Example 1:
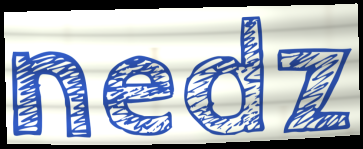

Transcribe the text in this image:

nedz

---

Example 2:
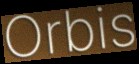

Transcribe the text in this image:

Orbis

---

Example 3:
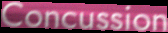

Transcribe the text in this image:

Concussion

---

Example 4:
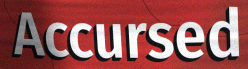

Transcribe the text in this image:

Accursed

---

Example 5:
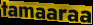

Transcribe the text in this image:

tamaaraa